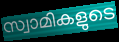
സ്വാമികളുടെ